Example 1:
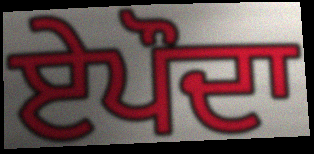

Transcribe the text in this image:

ਏਪੌਦਾ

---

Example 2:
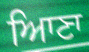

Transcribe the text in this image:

ਆਿਣਾ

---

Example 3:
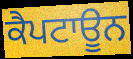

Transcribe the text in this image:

ਕੈਪਟਾਊਨ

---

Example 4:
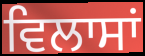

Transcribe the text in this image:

ਵਿਲਾਸਾਂ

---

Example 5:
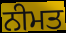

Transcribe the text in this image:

ਨੀਮਤ